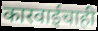
कारवाईचाही